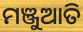
ମଞ୍ଜୁଆତି